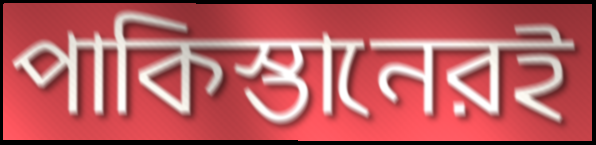
পাকিস্তানেরই